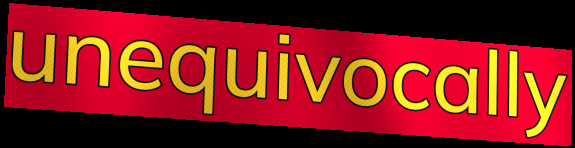
unequivocally